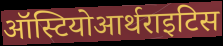
ऑस्टियोआर्थराइटिस